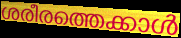
ശരീരത്തെക്കാൾ